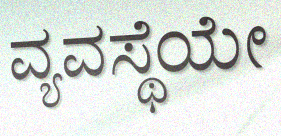
ವ್ಯವಸ್ಥೆಯೇ